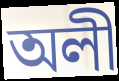
অলী